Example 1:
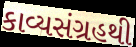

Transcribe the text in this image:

કાવ્યસંગ્રહથી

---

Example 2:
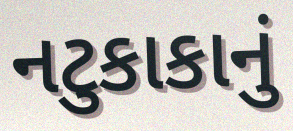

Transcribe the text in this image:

નટુકાકાનું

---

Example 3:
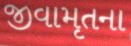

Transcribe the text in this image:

જીવામૃતના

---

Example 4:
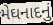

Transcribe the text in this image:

મેઘનાદનું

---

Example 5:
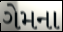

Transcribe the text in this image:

ગેમના